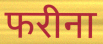
फरीना